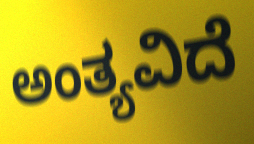
ಅಂತ್ಯವಿದೆ